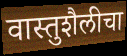
वास्तुशैलीचा